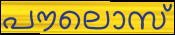
പൗലൊസ്